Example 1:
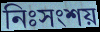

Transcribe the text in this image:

নিঃসংশয়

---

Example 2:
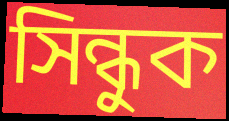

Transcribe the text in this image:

সিন্ধুক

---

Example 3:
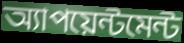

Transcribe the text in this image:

অ্যাপয়েন্টমেন্ট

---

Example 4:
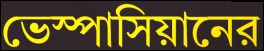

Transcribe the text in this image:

ভেস্পাসিয়ানের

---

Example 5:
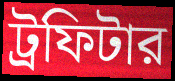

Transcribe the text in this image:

ট্রফিটার